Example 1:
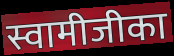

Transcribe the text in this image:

स्वामीजीका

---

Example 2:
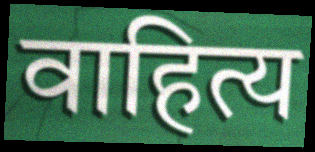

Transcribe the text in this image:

वाहित्य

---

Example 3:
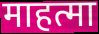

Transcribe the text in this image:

माहत्मा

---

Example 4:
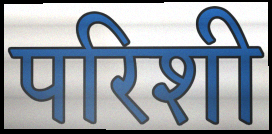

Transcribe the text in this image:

परिशी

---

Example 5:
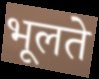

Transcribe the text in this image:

भूलते